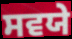
ਸਵਯੇ